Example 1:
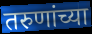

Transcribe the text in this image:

तरुणांच्या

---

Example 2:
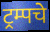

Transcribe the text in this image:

ट्रम्पचे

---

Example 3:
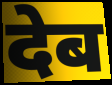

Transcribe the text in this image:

देब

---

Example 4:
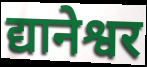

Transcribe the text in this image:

द्यानेश्वर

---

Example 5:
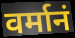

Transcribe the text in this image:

वर्मानं